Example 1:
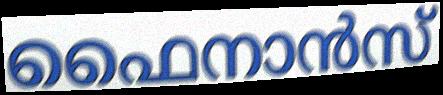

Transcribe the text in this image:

ഫൈനാൻസ്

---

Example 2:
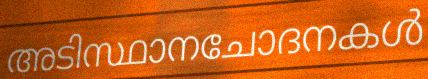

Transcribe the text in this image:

അടിസ്ഥാനചോദനകൾ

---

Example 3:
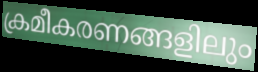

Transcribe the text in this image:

ക്രമീകരണങ്ങളിലും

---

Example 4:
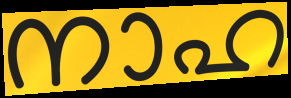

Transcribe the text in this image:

നാഹ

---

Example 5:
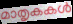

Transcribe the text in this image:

മാതൃകകൾ